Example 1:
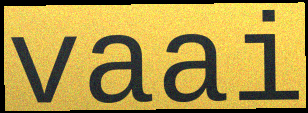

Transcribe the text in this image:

vaai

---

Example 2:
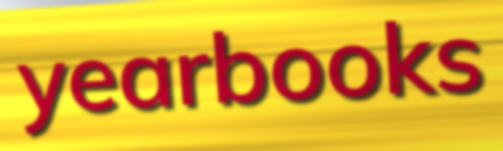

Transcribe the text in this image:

yearbooks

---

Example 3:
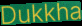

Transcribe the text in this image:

Dukkha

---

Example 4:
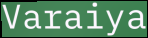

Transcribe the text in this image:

Varaiya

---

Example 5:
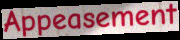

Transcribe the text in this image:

Appeasement